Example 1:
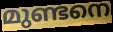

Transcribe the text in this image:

മുണ്ടനെ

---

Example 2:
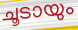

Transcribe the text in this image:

ചൂടായും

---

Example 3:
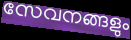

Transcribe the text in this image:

സേവനങ്ങളും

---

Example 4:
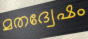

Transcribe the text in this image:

മതദ്വേഷം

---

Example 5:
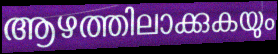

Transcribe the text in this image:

ആഴത്തിലാക്കുകയും